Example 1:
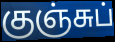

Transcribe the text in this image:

குஞ்சுப்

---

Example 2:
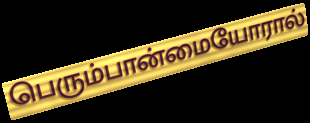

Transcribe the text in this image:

பெரும்பான்மையோரால்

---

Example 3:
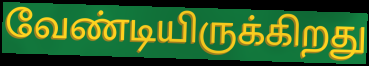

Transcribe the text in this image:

வேண்டியிருக்கிறது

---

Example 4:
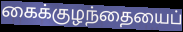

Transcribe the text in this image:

கைக்குழந்தையைப்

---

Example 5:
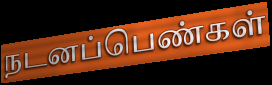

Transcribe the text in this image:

நடனப்பெண்கள்